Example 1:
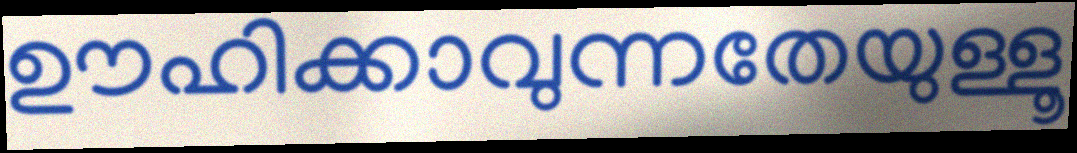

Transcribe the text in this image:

ഊഹിക്കാവുന്നതേയുള്ളൂ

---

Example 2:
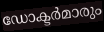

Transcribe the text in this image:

ഡോക്ടർമാരും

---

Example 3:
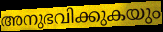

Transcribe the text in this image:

അനുഭവിക്കുകയും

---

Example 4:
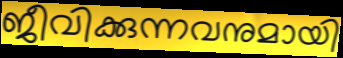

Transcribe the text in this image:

ജീവിക്കുന്നവനുമായി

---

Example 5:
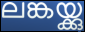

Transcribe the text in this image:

ലങ്കയ്ക്കു